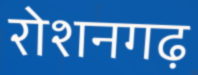
रोशनगढ़